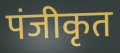
पंजीकृत